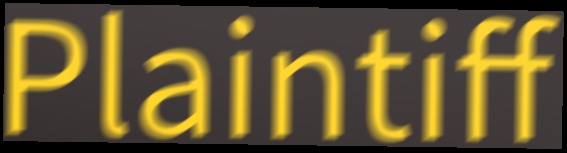
Plaintiff